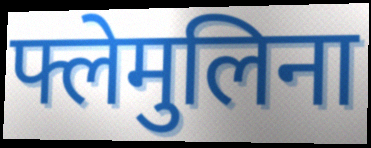
फ्लेमुलिना